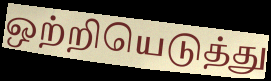
ஒற்றியெடுத்து